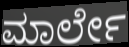
ಮಾರ್ಲೇ